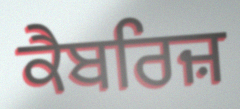
ਕੈਬਰਿਜ਼